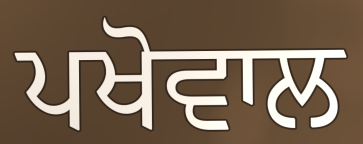
ਪਖੋਵਾਲ